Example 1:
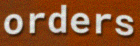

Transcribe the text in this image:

orders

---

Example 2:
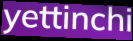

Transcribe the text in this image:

yettinchi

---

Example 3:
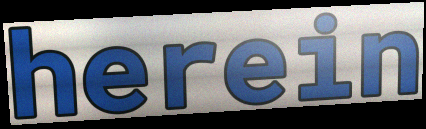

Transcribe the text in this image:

herein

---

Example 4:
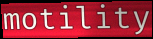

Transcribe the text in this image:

motility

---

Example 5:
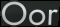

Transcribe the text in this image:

Oor